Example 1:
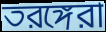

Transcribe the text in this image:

তরঙ্গেরা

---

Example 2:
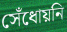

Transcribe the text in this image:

সেঁধোয়নি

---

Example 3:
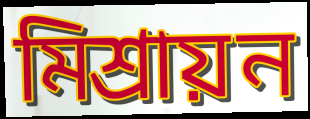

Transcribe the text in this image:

মিশ্রায়ন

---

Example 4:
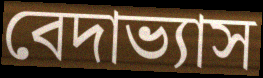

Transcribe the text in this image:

বেদাভ্যাস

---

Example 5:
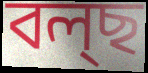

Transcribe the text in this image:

বল্‌ছ